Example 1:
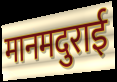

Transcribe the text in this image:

मानमदुराई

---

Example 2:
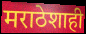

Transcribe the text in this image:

मराठेशाही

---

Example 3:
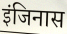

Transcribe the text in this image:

इंजिनास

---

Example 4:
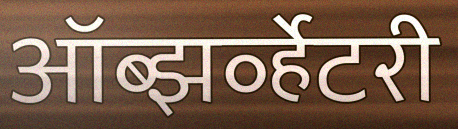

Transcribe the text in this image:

ऑब्झर्व्हेटरी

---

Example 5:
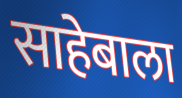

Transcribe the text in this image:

साहेबाला